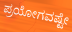
ಪ್ರಯೋಗವಷ್ಟೇ